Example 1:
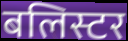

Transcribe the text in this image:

बलिस्टर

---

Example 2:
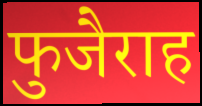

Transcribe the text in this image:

फुजैराह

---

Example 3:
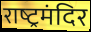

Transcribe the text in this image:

राष्ट्रमंदिर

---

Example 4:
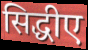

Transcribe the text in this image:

सिद्धीए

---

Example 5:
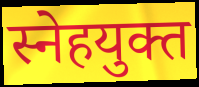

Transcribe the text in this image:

स्नेहयुक्त